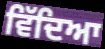
ਵਿੱਦਿਆ